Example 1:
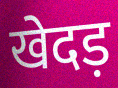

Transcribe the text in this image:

खेदड़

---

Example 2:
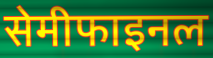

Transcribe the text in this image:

सेमीफाइनल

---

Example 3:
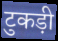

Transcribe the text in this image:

टुकड़ी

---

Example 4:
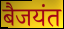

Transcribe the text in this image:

बैजयंत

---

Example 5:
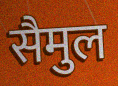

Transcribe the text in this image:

सैमुल